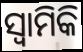
ସ୍ୱାମିକି